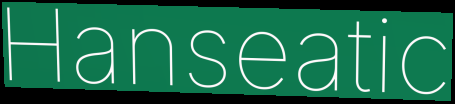
Hanseatic